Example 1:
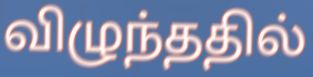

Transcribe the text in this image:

விழுந்ததில்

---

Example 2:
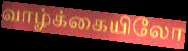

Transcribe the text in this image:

வாழ்க்கையிலோ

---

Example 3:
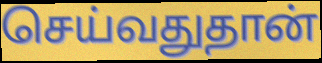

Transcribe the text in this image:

செய்வதுதான்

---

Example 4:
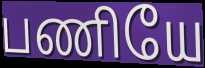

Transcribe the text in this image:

பணியே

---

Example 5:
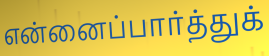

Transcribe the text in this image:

என்னைப்பார்த்துக்